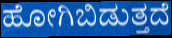
ಹೋಗಿಬಿಡುತ್ತದೆ